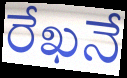
రేఖనే